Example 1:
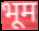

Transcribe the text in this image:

भूम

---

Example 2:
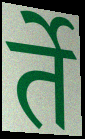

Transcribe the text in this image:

र्ते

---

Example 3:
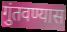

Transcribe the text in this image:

गुंतवण्यास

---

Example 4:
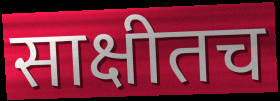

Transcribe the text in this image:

साक्षीतच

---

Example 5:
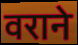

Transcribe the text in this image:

वराने